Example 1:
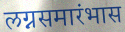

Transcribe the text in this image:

लग्नसमारंभास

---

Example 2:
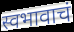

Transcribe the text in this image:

स्वभावाचं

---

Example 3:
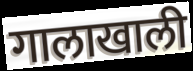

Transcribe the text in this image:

गालाखाली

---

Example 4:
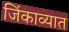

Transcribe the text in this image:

जिंकाव्यात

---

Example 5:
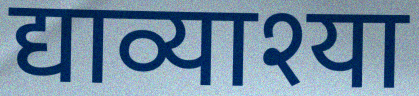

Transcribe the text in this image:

द्याव्याश्या